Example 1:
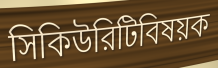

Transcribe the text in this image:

সিকিউরিটিবিষয়ক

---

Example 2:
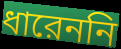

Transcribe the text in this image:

ধারেননি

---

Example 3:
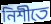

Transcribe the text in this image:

নিশীতে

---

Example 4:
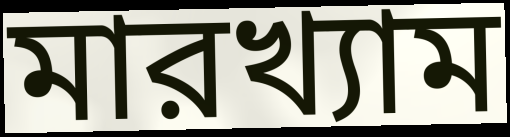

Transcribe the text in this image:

মারখ্যাম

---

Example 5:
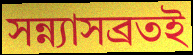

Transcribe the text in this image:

সন্ন্যাসব্রতই